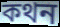
কথন